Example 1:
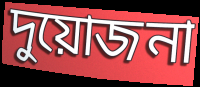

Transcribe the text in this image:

দুয়োজনা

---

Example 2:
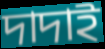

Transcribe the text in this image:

দাদাই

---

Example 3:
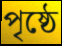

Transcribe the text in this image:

পৃষ্ঠে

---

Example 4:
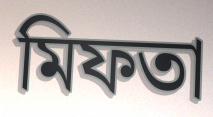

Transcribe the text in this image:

মিফতা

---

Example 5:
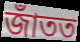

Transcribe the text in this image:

জাঁতত